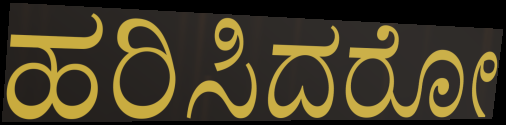
ಹರಿಸಿದರೋ